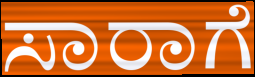
ಸಾರಾಗೆ